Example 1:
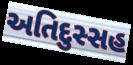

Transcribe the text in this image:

અતિદુસ્સહ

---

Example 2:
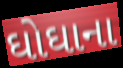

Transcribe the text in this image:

ઘોઘાના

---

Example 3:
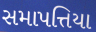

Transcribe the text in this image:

સમાપત્તિયા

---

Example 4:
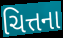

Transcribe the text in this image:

ચિત્તના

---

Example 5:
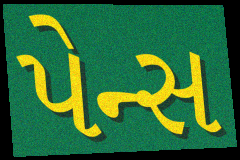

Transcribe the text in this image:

પેન્સ